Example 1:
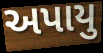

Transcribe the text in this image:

અપાયુ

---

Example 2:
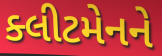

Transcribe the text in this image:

ક્લીટમેનને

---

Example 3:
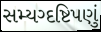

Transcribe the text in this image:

સમ્યગ્દષ્ટિપણું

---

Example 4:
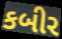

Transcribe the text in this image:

કબીર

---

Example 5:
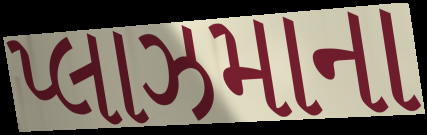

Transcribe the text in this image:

પ્લાઝમાના